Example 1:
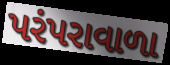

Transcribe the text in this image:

પરંપરાવાળા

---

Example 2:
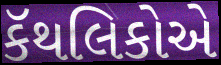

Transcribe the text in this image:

કૅથલિકોએ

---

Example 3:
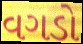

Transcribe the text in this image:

વગડો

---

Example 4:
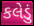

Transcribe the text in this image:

કલેડું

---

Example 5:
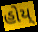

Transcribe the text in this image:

હોય્